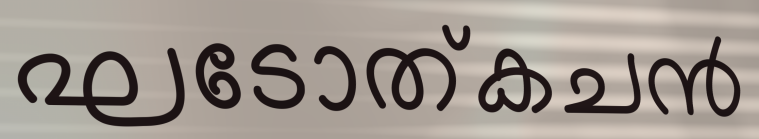
ഘടോത്കചൻ